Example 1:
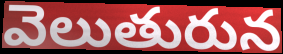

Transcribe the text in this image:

వెలుతురున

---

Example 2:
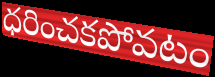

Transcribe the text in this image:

ధరించకపోవటం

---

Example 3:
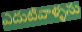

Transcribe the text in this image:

ఎదుటివాళ్ళను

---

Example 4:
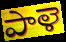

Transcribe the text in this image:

పాళె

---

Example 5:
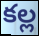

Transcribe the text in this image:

కల్ల